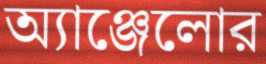
অ্যাঞ্জেলোর